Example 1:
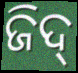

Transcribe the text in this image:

ଜିଦ୍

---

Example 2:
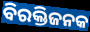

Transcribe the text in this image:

ବିରକ୍ତିଜନକ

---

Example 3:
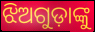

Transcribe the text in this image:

ଝିଅଗୁଡ଼ାଙ୍କୁ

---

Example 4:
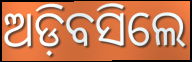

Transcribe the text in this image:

ଅଡ଼ିବସିଲେ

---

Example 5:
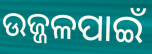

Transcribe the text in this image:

ଉଜ୍ଜଳପାଇଁ